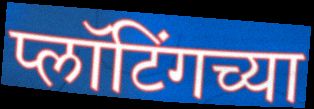
प्लॉटिंगच्या